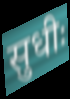
सुधीः